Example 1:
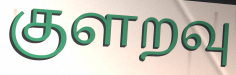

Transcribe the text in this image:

குளறவு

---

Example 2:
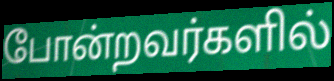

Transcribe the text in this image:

போன்றவர்களில்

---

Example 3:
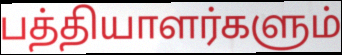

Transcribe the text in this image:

பத்தியாளர்களும்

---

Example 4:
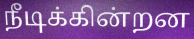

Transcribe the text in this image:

நீடிக்கின்றன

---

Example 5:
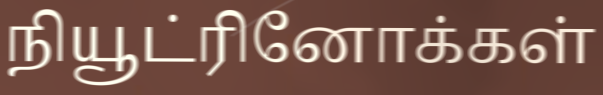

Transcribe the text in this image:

நியூட்ரினோக்கள்